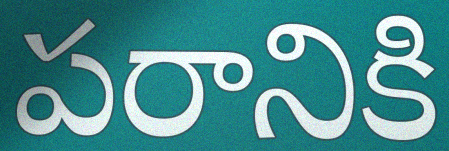
పరానికి